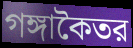
গঙ্গাকৈতর